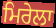
ਮਿਰੇਲਾ